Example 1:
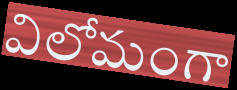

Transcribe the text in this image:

విలోమంగా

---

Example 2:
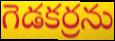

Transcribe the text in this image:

గెడకర్రను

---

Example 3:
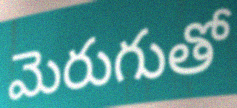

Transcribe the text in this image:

మెరుగుతో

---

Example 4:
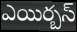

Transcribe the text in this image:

ఎయిర్బస్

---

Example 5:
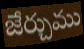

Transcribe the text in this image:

జేర్చుము